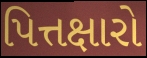
પિત્તક્ષારો